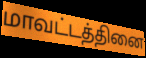
மாவட்டத்தினை